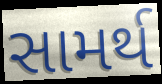
સામર્થ